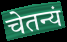
चेतन्यं